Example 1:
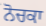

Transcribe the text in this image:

ਨੋਚਕਾ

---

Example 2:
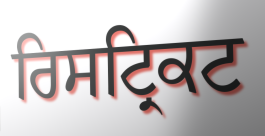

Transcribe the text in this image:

ਰਿਸਟ੍ਰਿਕਟ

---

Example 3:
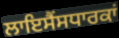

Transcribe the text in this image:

ਲਾਇਸੈਂਸਧਾਰਕਾਂ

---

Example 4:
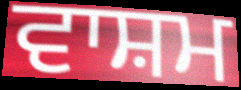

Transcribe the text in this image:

ਵਾਸ਼ਮ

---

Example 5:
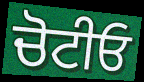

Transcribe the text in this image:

ਚੋਟੀਓ